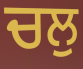
ਚਲੁ